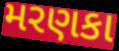
મરણકા